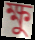
ক্ষু